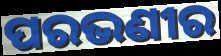
ପରଭଣୀର